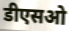
डीएसओ